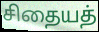
சிதையத்